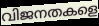
വിജനതകളെ